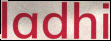
ladhi